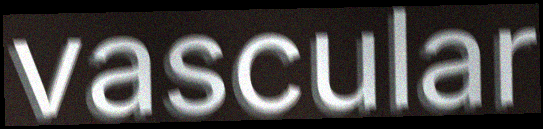
vascular